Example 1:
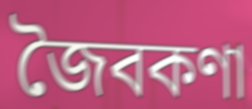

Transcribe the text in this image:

জৈবকণা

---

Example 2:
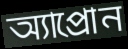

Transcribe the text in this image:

অ্যাপ্রোন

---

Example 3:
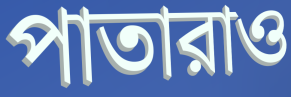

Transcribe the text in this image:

পাতারাও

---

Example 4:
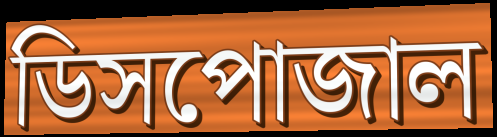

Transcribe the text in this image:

ডিসপোজাল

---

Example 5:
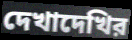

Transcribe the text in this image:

দেখাদেখির